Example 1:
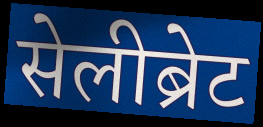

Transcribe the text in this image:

सेलीब्रेट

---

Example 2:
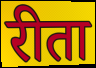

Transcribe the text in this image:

रीता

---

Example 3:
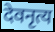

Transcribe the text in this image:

देवनृत्य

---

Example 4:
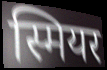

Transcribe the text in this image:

स्मियर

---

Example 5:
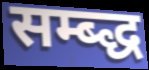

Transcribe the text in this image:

सम्ब्द्ध